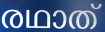
രഥാത്